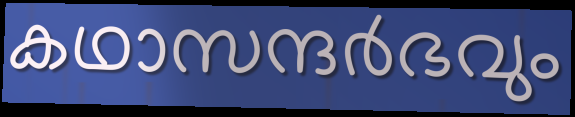
കഥാസന്ദർഭവും